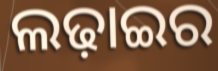
ଲଢ଼ାଇର